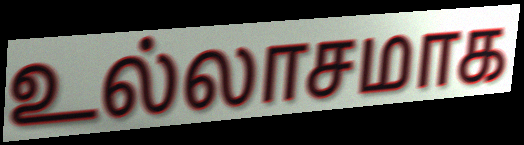
உல்லாசமாக